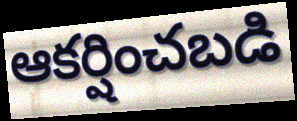
ఆకర్షించబడి